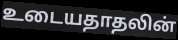
உடையதாதலின்